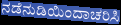
ನಡೆನುಡಿಯಿಂದಾಚರಿಸಿ